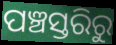
ପଞ୍ଚସ୍ତରିରୁ